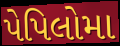
પેપિલોમા